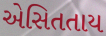
એસિતતાય